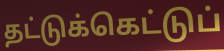
தட்டுக்கெட்டுப்